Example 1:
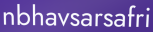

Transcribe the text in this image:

nbhavsarsafri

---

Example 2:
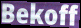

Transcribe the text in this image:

Bekoff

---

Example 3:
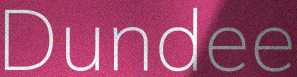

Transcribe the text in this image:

Dundee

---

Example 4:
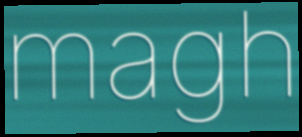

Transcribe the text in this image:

magh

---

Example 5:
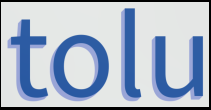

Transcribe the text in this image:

tolu